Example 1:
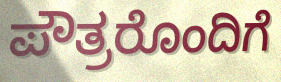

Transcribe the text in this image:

ಪೌತ್ರರೊಂದಿಗೆ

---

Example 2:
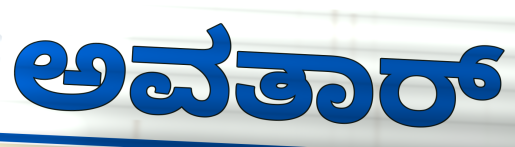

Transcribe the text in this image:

ಅವತಾರ್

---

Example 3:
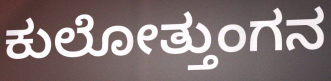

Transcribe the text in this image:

ಕುಲೋತ್ತುಂಗನ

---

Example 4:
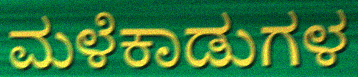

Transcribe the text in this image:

ಮಳೆಕಾಡುಗಳ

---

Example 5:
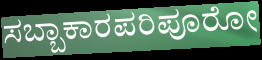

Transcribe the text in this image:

ಸಬ್ಬಾಕಾರಪರಿಪೂರೋ